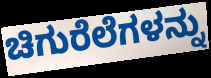
ಚಿಗುರೆಲೆಗಳನ್ನು